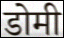
डोमी